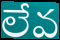
లేవ